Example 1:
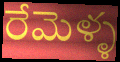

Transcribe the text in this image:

రేమెళ్ళ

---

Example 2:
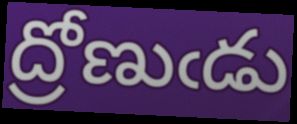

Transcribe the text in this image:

ద్రోణుఁడు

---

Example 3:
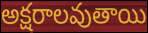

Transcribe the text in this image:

అక్షరాలవుతాయి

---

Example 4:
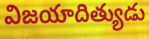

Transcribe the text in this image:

విజయాదిత్యుడు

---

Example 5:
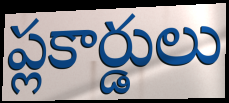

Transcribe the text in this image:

ప్లకార్డులు